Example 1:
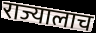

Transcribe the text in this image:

राज्यालाच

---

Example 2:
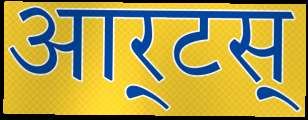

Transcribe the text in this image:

आर्टस्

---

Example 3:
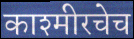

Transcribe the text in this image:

काश्मीरचेच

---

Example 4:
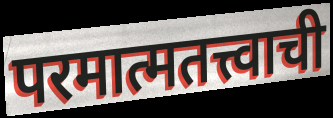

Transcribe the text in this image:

परमात्मतत्त्वाची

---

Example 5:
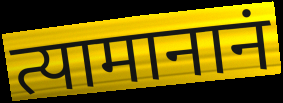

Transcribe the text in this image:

त्यामानानं